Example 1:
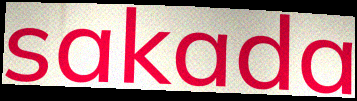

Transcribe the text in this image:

sakada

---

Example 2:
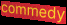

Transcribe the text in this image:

commedy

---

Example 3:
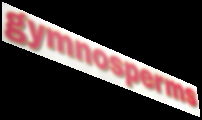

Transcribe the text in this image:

gymnosperms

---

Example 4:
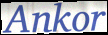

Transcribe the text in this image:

Ankor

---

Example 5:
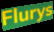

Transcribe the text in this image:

Flurys